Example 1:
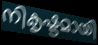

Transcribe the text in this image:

നികൃഷ്ടമായി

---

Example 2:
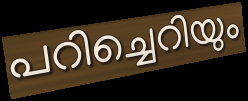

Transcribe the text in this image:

പറിച്ചെറിയും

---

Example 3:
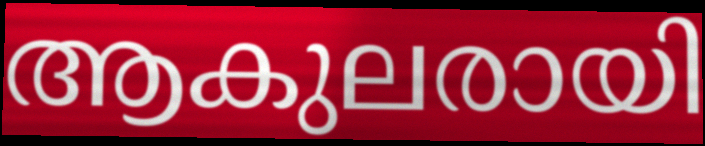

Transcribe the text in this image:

ആകുലരായി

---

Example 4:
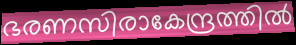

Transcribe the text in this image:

ഭരണസിരാകേന്ദ്രത്തിൽ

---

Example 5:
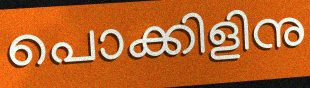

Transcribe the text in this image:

പൊക്കിളിനു